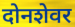
दोनशेवर